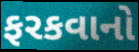
ફરકવાનો